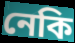
নেকি